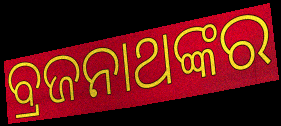
ବ୍ରଜନାଥଙ୍କର